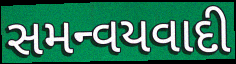
સમન્વયવાદી